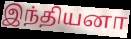
இந்தியனா